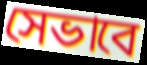
সেভাবে